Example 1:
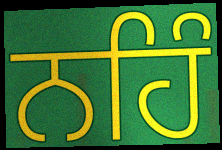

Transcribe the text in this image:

ਨਹਿੰ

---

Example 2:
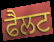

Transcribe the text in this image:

ਫੈਲਟ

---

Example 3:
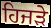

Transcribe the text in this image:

ਹਿਜੜੇ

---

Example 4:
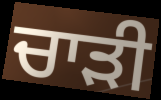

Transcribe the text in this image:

ਚਾਡ਼ੀ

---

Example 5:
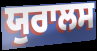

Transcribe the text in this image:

ਯੁਰਾਲਸ